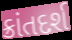
ક્રાંતદર્શ